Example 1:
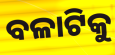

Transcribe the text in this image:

ବଳାଟିକୁ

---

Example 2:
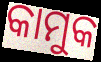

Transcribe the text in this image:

କାମୁକ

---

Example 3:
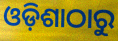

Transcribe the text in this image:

ଓଡ଼ିଶାଠାରୁ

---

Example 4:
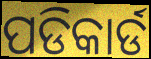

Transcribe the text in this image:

ପଡିକାର୍ଡ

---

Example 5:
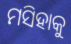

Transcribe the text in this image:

ମସିହାକୁ